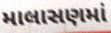
માલાસણમાં